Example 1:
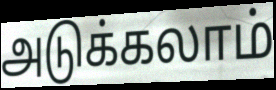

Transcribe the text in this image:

அடுக்கலாம்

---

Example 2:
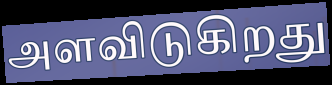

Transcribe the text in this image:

அளவிடுகிறது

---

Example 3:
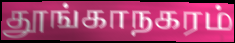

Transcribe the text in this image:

தூங்காநகரம்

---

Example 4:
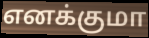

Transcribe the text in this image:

எனக்குமா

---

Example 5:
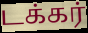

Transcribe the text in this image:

டக்கர்